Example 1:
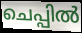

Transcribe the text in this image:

ചെപ്പിൽ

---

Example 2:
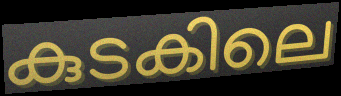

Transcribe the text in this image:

കുടകിലെ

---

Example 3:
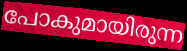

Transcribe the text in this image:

പോകുമായിരുന്ന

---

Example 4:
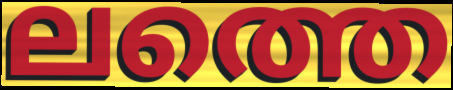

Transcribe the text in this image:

ലത്തെ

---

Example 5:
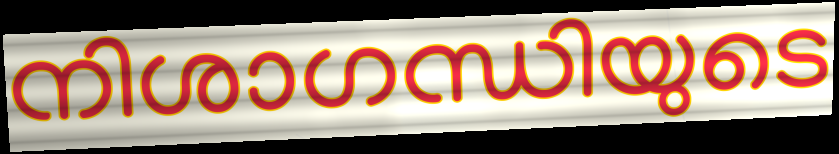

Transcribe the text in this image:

നിശാഗന്ധിയുടെ